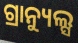
ଗ୍ରାନ୍ୟୁଲ୍ସ